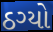
ઠગ્યો